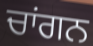
ਚਾਂਗਨ